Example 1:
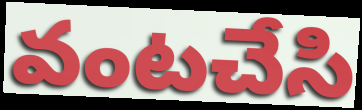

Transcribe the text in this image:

వంటచేసి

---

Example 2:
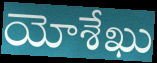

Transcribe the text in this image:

యోశేఖు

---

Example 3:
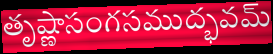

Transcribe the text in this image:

తృష్ణాసంగసముద్భవమ్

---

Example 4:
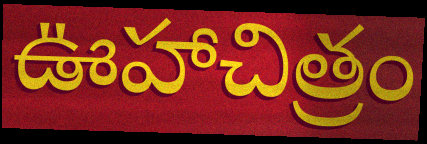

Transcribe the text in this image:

ఊహాచిత్రం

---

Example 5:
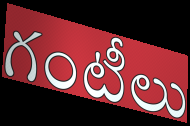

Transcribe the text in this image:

గంటీలు